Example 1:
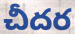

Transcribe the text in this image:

చీదర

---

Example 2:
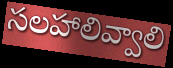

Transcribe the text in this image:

సలహాలివ్వాలి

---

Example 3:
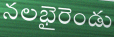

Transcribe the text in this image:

నలభైరెండు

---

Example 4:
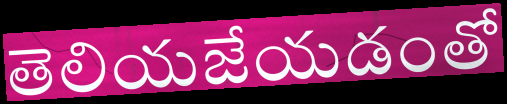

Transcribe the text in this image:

తెలియజేయడంతో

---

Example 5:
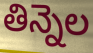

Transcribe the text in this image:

తిన్నెల